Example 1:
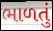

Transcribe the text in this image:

ભાળતું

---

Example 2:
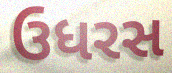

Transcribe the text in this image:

ઉધરસ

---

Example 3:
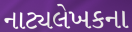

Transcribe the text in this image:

નાટ્યલેખકના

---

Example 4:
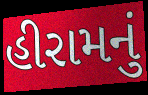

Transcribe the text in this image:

હીરામનું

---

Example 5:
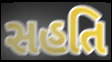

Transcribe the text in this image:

સહતિ